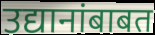
उद्यानांबाबत